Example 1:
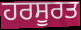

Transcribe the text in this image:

ਹਰਸੂਰਤ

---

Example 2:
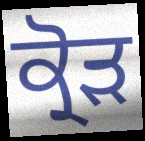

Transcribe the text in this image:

ਕ੍ਰੋੜ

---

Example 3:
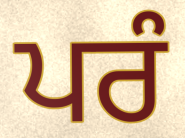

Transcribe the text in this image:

ਪਰੰ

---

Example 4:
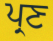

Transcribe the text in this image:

ਪ੍ਰਣ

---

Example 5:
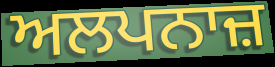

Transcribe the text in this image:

ਅਲਪਨਾਜ਼